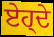
ਏਹ੍ਦੇ